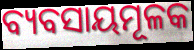
ବ୍ୟବସାୟମୂଳକ